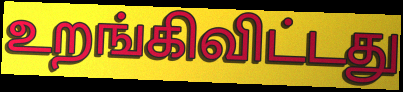
உறங்கிவிட்டது